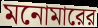
মনোমারের